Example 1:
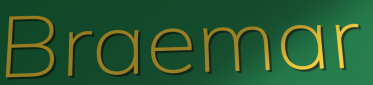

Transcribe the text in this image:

Braemar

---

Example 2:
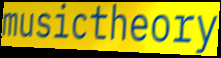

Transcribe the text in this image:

musictheory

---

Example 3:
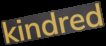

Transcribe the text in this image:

kindred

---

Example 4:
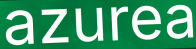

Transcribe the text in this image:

azurea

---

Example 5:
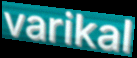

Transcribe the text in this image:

varikal